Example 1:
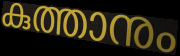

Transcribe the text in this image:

കുത്താനും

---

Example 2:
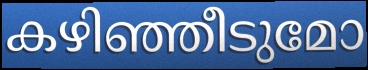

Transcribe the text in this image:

കഴിഞ്ഞീടുമോ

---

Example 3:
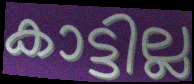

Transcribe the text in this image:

കാട്ടില്ല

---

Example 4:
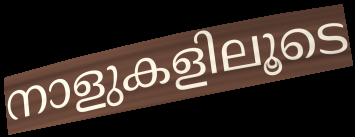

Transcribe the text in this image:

നാളുകളിലൂടെ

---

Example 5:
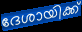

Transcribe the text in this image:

ദേശായിക്ക്